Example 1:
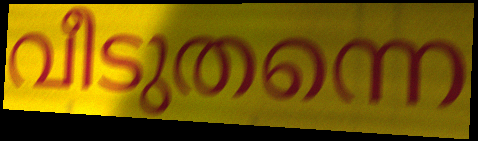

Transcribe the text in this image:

വീടുതന്നെ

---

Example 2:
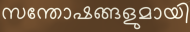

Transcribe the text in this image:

സന്തോഷങ്ങളുമായി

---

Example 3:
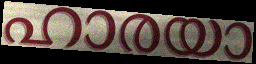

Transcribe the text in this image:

ഹാരയാ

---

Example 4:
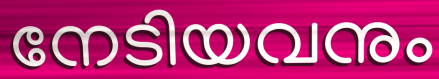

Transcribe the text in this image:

നേടിയവനും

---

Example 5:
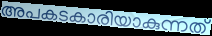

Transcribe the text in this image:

അപകടകാരിയാകുന്നത്